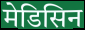
मेडिसिन